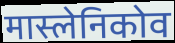
मास्लेनिकोव